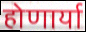
होणार्या